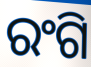
ରଂଗି